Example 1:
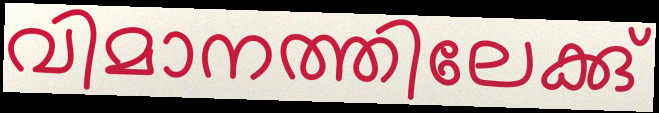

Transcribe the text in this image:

വിമാനത്തിലേക്കു്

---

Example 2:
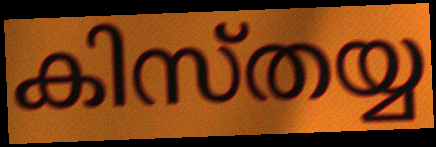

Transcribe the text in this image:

കിസ്തയ്യ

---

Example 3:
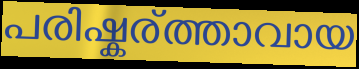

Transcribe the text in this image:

പരിഷ്കര്ത്താവായ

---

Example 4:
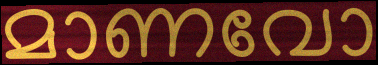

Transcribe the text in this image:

മാണവോ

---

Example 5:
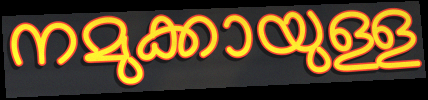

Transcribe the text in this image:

നമുക്കായുള്ള